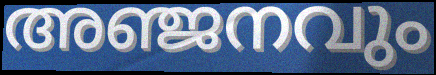
അഞ്ജനവും